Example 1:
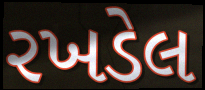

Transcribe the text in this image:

રખડેલ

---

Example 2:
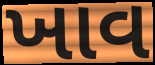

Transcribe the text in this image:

ખાવ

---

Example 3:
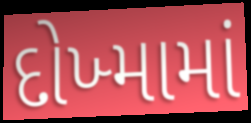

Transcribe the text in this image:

દોખ્મામાં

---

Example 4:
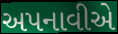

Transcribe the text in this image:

અપનાવીએ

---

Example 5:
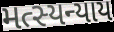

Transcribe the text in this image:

મત્સ્યન્યાય